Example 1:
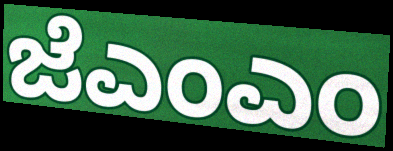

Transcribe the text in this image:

ಜೆಎಂಎಂ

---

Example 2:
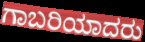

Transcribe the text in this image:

ಗಾಬರಿಯಾದರು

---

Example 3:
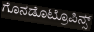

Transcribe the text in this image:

ಗೊನಡೊಟ್ರೊಪಿನ್ಸ್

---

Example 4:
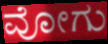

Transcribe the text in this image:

ವೋಗು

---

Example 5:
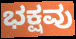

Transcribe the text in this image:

ಭಕ್ಷವು